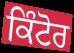
ਕਿੰਟੋਰ